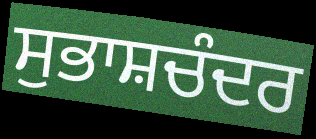
ਸੁਭਾਸ਼ਚੰਦਰ